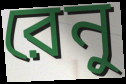
রেনু